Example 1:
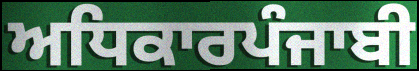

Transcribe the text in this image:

ਅਧਿਕਾਰਪੰਜਾਬੀ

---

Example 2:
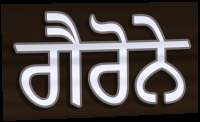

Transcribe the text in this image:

ਗੈਰੋਨੇ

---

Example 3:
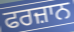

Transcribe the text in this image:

ਫਰਜ਼ਾਨ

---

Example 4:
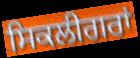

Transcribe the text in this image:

ਸਿਕਲੀਗਰਾਂ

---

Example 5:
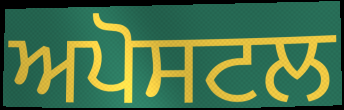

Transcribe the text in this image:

ਅਪੋਸਟਲ